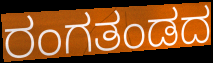
ರಂಗತಂಡದ